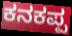
ಕನಕಪ್ಪ